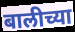
बालीच्या